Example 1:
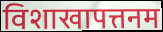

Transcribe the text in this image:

विशाखापत्तनम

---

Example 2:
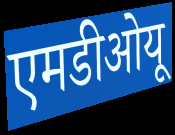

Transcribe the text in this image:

एमडीओयू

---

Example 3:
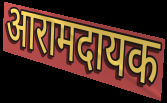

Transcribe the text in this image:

आरामदायक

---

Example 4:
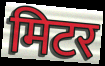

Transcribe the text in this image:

मिटर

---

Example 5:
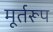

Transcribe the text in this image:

मूर्तरूप